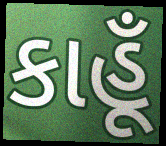
કાહૂઁ